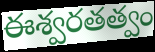
ఈశ్వరతత్వం